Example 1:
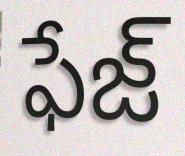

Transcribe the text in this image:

ఫేజ్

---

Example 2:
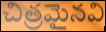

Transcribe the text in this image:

చిత్రమైనవి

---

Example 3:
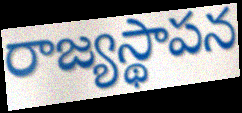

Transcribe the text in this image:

రాజ్యస్థాపన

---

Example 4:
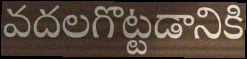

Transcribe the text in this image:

వదలగొట్టడానికి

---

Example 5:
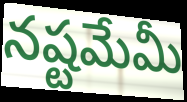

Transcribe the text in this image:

నష్టమేమీ